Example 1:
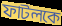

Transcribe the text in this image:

ফাটলকে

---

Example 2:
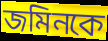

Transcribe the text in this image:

জমিনকে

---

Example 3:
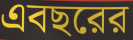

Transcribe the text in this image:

এবছরের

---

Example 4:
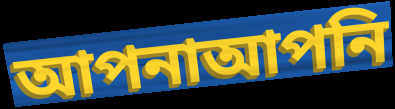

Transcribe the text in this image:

আপনাআপনি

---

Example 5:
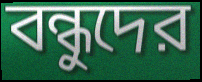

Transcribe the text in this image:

বন্ধুদের